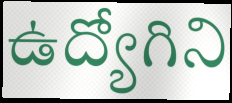
ఉద్యోగిని